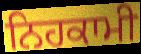
ਨਿਹਕਾਮੀ